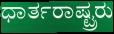
ಧಾರ್ತರಾಷ್ಟ್ರರು